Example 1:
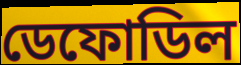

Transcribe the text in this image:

ডেফোডিল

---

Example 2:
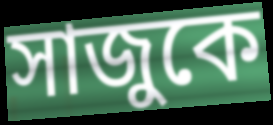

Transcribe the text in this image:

সাজুকে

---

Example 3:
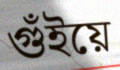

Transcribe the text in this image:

গুঁইয়ে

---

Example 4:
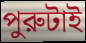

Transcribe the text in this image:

পুরুটাই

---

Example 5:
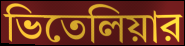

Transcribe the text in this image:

ভিতেলিয়ার